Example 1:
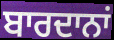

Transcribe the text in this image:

ਬਾਰਦਾਨਾਂ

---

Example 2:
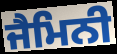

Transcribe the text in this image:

ਜੈਮਿਨੀ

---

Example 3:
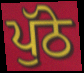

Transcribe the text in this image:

ਪੁੱਠੇ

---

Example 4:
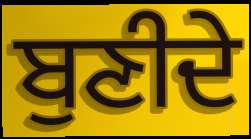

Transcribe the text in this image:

ਬੁਣੀਦੇ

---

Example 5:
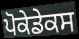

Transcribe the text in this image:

ਪੋਕੇਡੇਕਸ